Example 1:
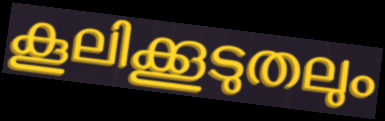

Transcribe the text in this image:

കൂലിക്കൂടുതലും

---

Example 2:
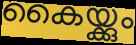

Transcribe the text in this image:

കൈയ്ക്കും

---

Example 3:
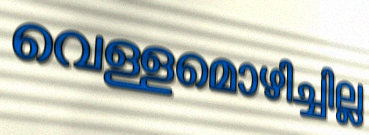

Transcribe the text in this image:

വെള്ളമൊഴിച്ചില്ല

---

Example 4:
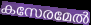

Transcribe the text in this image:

കസേരമേൽ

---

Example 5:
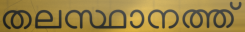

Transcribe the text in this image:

തലസ്ഥാനത്ത്